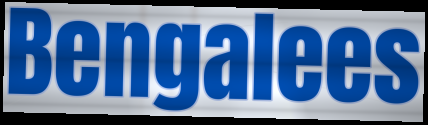
Bengalees